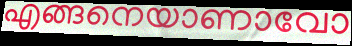
എങ്ങനെയാണാവോ